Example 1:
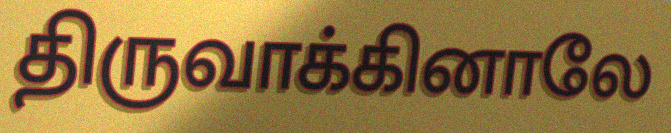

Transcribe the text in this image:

திருவாக்கினாலே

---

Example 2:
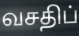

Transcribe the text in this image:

வசதிப்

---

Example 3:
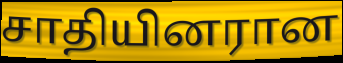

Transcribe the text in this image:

சாதியினரான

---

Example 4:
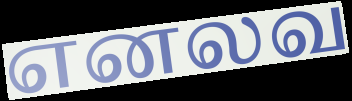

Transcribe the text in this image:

எனலவ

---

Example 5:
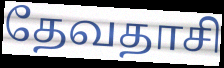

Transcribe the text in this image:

தேவதாசி